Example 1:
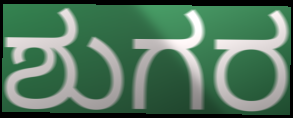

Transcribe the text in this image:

ಶುಗರ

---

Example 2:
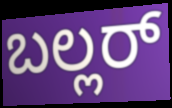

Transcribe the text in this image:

ಬಲ್ಲರ್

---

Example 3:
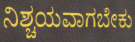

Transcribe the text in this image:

ನಿಶ್ಚಯವಾಗಬೇಕು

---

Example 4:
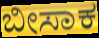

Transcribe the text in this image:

ಬೀಸಾಕ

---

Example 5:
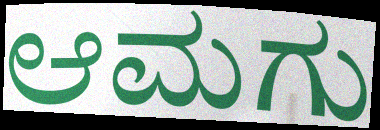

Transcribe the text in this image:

ಆಮಗು